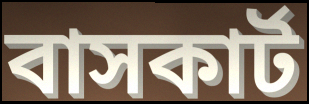
বাসকার্ট